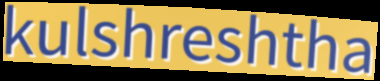
kulshreshtha